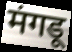
मंगडू